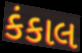
કંકાલ